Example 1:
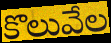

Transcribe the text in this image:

కొలువేల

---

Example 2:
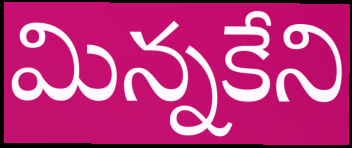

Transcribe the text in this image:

మిన్నకేని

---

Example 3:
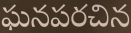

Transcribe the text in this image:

ఘనపరచిన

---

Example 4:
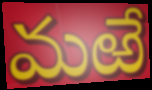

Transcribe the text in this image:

మఱే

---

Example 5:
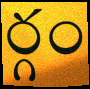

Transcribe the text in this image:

ర్గం